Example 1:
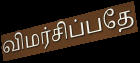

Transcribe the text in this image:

விமர்சிப்பதே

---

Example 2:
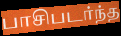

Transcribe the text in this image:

பாசிபடர்ந்த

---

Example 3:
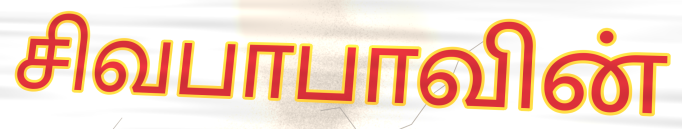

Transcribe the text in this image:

சிவபாபாவின்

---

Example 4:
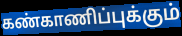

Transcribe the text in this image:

கண்காணிப்புக்கும்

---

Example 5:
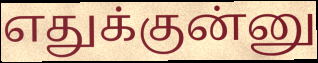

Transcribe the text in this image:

எதுக்குன்னு